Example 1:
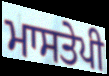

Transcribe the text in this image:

ਮਾਸਤੇਪੀ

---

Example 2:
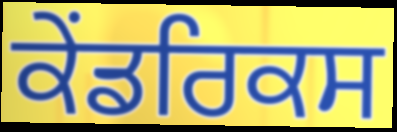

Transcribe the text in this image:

ਕੇਂਡਰਿਕਸ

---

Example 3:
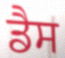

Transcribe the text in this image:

ਡੈਸ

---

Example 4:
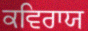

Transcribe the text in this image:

ਕਵਿਰਾਯ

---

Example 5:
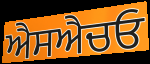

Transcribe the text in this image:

ਐਸਐਚਓ